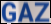
GAZ